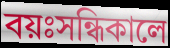
বয়ঃসন্ধিকালে